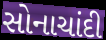
સોનાચાંદી